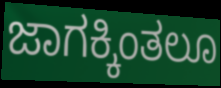
ಜಾಗಕ್ಕಿಂತಲೂ